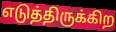
எடுத்திருக்கிற